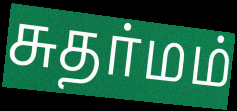
சுதர்மம்